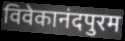
विवेकानंदपुरम